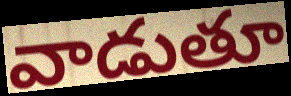
వాడుతూ